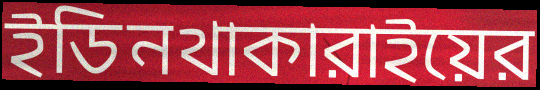
ইডিনথাকারাইয়ের